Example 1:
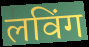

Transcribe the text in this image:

लविंग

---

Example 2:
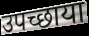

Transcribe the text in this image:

उपच्छाया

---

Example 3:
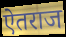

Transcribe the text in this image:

ऐतराज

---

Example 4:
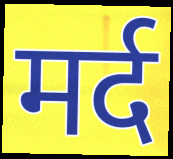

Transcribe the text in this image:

मर्द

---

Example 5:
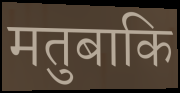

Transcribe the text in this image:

मतुबाकि